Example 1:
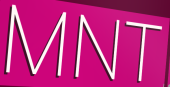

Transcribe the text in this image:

MNT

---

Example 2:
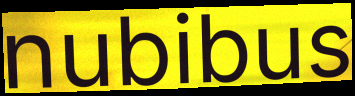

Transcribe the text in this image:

nubibus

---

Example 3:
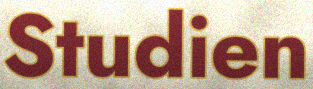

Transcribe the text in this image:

Studien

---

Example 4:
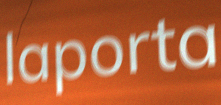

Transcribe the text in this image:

laporta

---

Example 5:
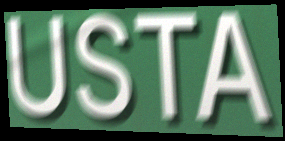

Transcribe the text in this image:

USTA